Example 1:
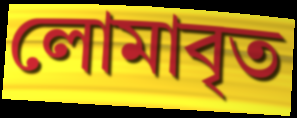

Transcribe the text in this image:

লোমাবৃত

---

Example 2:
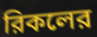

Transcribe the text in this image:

রিকলের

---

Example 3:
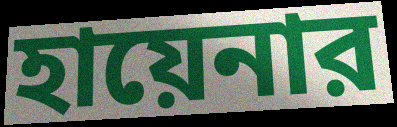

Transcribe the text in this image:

হায়েনার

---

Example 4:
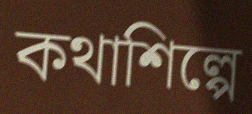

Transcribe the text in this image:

কথাশিল্পে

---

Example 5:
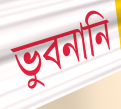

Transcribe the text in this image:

ভুবনানি